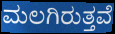
ಮಲಗಿರುತ್ತವೆ